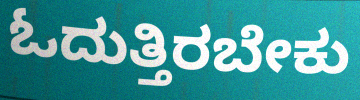
ಓದುತ್ತಿರಬೇಕು